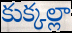
కుక్కల్లా